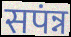
सपंन्न